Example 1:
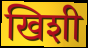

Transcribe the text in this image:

खिशी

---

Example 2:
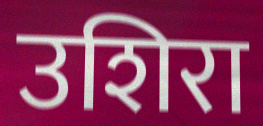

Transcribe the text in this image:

उशिरा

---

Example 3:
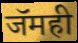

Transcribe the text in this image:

जॅमही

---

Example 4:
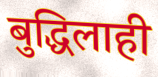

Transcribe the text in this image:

बुद्धिलाही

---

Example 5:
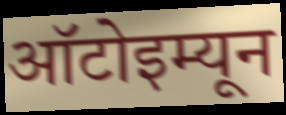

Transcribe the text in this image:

ऑटोइम्यून